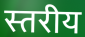
स्तरीय